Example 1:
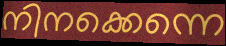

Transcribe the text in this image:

നിനക്കെന്നെ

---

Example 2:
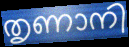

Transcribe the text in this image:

തൃണാനി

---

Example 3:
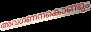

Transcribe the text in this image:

അവഗണനകൊണ്ടും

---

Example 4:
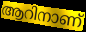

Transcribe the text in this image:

ആറിനാണ്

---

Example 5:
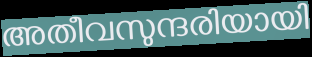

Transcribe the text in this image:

അതീവസുന്ദരിയായി